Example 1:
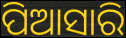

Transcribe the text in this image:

ପିଆସାରି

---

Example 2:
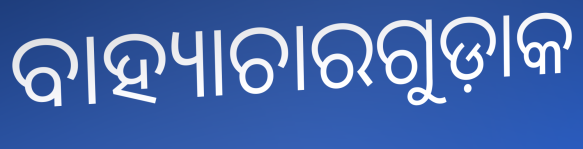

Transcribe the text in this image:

ବାହ୍ୟାଚାରଗୁଡ଼ାକ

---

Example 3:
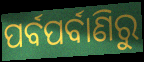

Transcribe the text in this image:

ପର୍ବପର୍ବାଣିରୁ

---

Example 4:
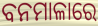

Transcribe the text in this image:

ବନମାଳାରେ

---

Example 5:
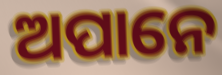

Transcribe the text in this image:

ଅପାନେ